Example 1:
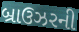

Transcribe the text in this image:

બ્રાઉઝરની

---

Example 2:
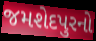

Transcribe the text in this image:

જમશેદપુરનો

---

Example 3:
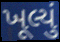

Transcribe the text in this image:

ખૂલ્યું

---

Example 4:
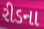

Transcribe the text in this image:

રીડના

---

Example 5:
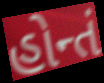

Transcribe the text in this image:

હોન્તં